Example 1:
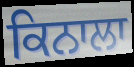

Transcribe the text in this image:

ਕਿਨਾਲਾ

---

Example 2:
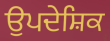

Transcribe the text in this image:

ਉਪਦੇਸ਼ਿਕ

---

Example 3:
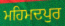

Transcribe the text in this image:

ਮਹਿਮਦਪੁਰ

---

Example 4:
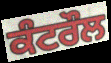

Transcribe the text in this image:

ਕੰਟਰੌਲ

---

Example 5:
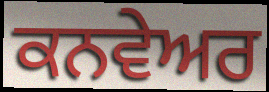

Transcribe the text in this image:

ਕਨਵੇਅਰ